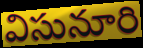
విసునూరి